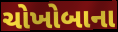
ચોખોબાના